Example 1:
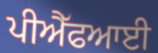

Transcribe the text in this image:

ਪੀਐੱਫਆਈ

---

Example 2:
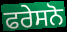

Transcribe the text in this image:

ਫਰੇਸਨੋ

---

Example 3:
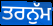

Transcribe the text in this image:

ਤਰਨੁੱਮ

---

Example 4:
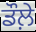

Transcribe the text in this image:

ਡੌਲ਼ੇ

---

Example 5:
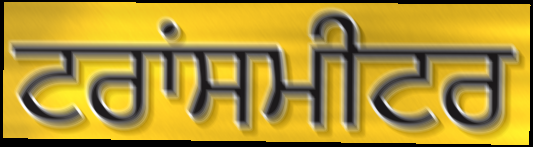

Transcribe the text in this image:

ਟਰਾਂਸਮੀਟਰ